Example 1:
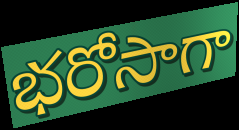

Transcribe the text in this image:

భరోసాగా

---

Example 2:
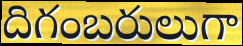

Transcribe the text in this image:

దిగంబరులుగా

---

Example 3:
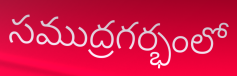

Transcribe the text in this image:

సముద్రగర్భంలో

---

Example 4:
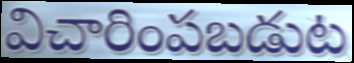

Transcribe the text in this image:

విచారింపబడుట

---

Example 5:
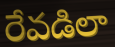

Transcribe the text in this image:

రేవడిలా